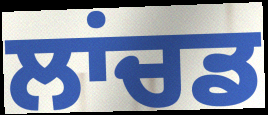
ਲਾਂਚਡ